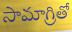
సామాగ్రితో